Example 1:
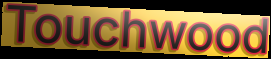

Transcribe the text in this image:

Touchwood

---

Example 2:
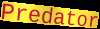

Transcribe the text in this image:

Predator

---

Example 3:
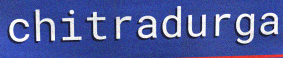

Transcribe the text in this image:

chitradurga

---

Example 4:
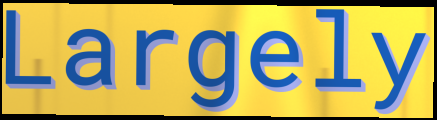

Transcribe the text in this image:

Largely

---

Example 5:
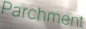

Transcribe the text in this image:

Parchment